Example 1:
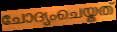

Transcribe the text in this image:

ചോദ്യംചെയ്തത്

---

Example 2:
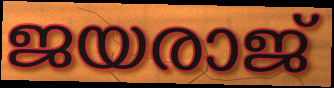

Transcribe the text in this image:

ജയരാജ്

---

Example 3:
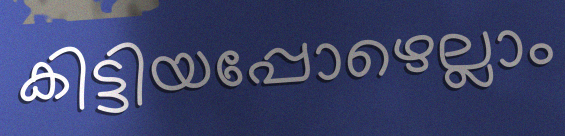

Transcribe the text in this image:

കിട്ടിയപ്പോഴെല്ലാം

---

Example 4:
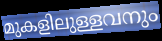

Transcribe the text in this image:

മുകളിലുള്ളവനും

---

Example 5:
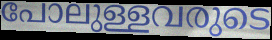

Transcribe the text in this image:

പോലുള്ളവരുടെ